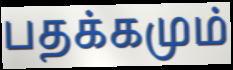
பதக்கமும்